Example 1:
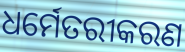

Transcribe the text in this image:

ଧର୍ମେତରୀକରଣ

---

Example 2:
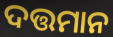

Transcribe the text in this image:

ଦତ୍ତମାନ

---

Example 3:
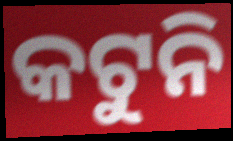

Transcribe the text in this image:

କଟୁନି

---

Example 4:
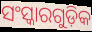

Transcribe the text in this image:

ସଂସ୍କାରଗୁଡ଼ିକ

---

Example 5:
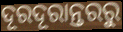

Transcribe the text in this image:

ଦୂରଦୂରାନ୍ତରରୁ